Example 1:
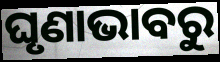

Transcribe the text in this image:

ଘୃଣାଭାବରୁ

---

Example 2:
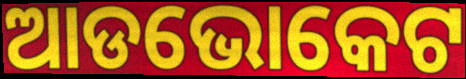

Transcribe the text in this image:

ଆଡଭୋକେଟ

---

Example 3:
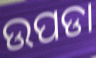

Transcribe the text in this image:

ଉପଡା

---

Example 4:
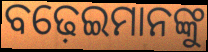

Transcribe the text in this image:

ବଢ଼େଇମାନଙ୍କୁ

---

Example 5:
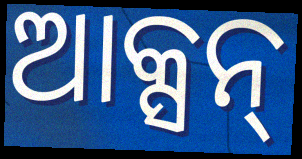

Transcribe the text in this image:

ଆକ୍ସନ୍